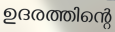
ഉദരത്തിന്റെ